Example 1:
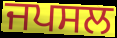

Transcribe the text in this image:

ਜਪਸਲ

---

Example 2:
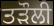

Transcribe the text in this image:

ਤੜੌਲੀ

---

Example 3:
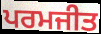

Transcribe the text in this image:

ਪਰਮਜੀਤ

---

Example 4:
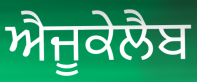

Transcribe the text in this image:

ਐਜੂਕੇਲੈਬ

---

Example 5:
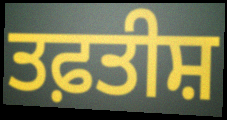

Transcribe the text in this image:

ਤਫ਼ਤੀਸ਼